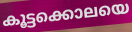
കൂട്ടക്കൊലയെ